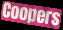
Coopers